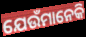
ଯେଉଁମାନେକି